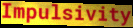
Impulsivity